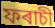
ফৰাচী